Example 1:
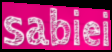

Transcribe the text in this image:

sabiei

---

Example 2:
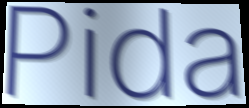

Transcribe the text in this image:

Pida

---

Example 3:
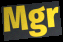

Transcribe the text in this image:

Mgr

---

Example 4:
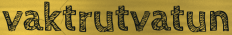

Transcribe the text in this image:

vaktrutvatun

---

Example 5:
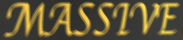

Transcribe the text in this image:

MASSIVE